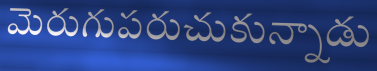
మెరుగుపరుచుకున్నాడు